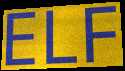
ELF